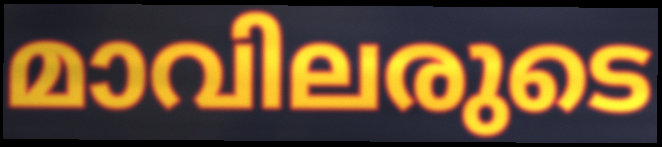
മാവിലരുടെ